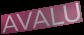
AVALU